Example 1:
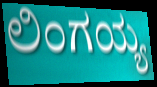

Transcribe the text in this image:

ಲಿಂಗಯ್ಯ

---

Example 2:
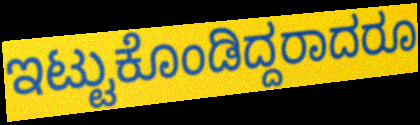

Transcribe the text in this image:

ಇಟ್ಟುಕೊಂಡಿದ್ದರಾದರೂ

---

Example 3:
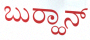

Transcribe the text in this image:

ಬುರ‍್ಹಾನ್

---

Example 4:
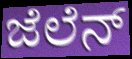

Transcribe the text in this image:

ಜೆಲೆನ್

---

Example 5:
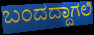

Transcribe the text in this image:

ಬಂದದ್ದಾಗಲಿ